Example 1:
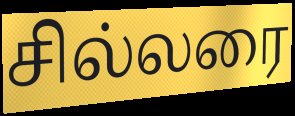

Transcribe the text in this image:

சில்லரை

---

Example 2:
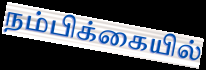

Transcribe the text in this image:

நம்பிக்கையில்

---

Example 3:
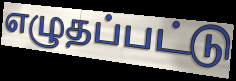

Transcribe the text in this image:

எழுதப்பட்டு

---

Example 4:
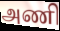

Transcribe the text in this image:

அணி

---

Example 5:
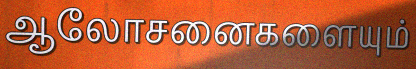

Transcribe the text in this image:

ஆலோசனைகளையும்